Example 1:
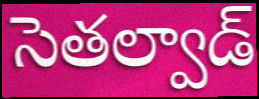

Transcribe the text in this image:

సెతల్వాడ్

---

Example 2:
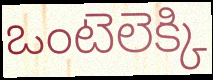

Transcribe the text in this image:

ఒంటెలెక్కి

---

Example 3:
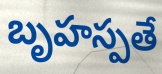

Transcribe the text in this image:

బృహస్పతే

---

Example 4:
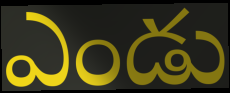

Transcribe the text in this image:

ఎండు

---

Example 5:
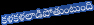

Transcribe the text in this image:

కళకళలాడిపోతుంటుంది